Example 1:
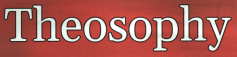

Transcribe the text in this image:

Theosophy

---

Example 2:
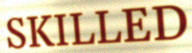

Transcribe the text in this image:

SKILLED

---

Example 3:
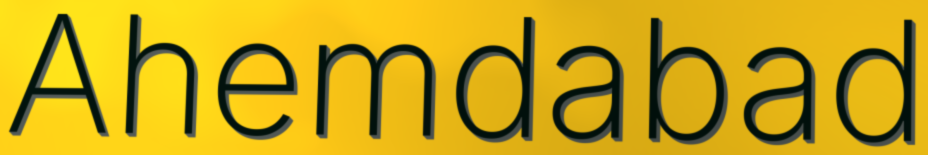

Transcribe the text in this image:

Ahemdabad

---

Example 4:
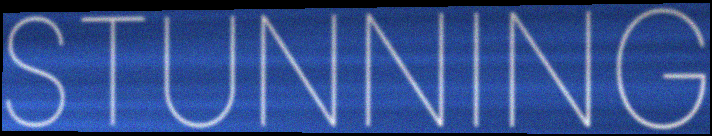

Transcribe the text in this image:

STUNNING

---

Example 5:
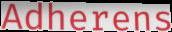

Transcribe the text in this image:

Adherens